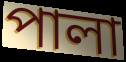
পালা